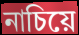
নাচিয়ে